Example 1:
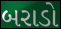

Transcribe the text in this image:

બરાડો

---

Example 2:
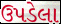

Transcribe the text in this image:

ઉપડેલા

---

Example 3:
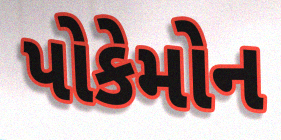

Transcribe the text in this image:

પોકેમોન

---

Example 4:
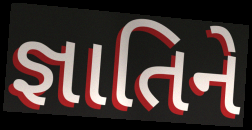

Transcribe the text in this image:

જ્ઞાતિને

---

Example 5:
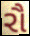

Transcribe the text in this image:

રૌ